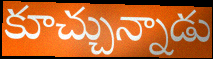
కూచ్చున్నాడు